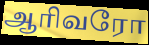
ஆரிவரோ